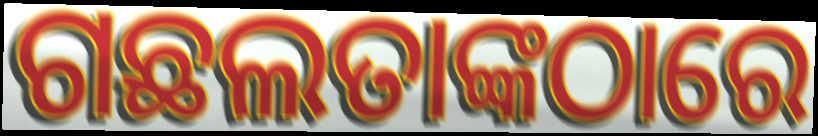
ଗଛଲତାଙ୍କଠାରେ